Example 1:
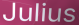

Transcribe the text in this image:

Julius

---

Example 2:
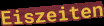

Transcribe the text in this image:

Eiszeiten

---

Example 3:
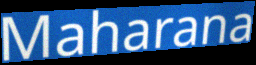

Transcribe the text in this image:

Maharana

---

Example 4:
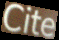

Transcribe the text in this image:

Cite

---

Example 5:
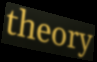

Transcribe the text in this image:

theory